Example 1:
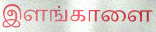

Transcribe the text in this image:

இளங்காளை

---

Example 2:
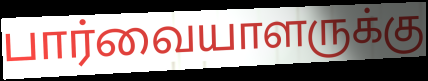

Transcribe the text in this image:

பார்வையாளருக்கு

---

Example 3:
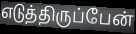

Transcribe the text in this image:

எடுத்திருப்பேன்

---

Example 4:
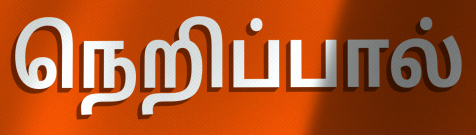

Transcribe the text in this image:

நெறிப்பால்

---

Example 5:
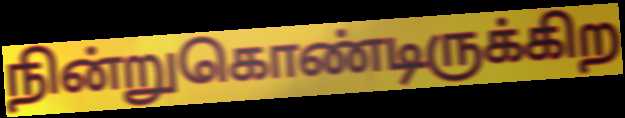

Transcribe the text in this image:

நின்றுகொண்டிருக்கிற